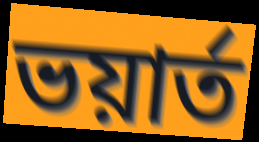
ভয়ার্ত